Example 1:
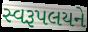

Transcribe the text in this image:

સ્વરૂપલયને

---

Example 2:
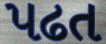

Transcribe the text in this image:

પઢત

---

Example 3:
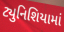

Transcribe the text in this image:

ટ્યુનિશિયામાં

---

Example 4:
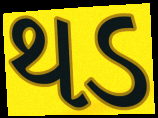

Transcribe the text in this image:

થડ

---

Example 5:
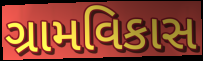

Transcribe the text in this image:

ગ્રામવિકાસ